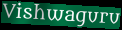
Vishwaguru